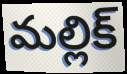
మల్లిక్